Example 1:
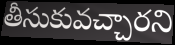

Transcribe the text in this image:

తీసుకువచ్చారని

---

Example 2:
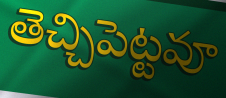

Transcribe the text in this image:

తెచ్చిపెట్టవూ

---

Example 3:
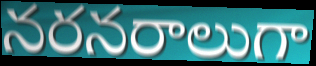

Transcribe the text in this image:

నరనరాలుగా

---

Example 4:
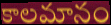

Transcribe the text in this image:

కాలమానం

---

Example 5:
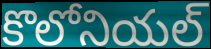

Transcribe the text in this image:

కొలోనియల్